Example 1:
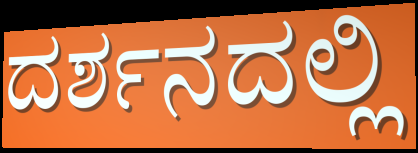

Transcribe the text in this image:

ದರ್ಶನದಲ್ಲಿ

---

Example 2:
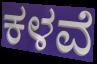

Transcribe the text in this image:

ಕಳವೆ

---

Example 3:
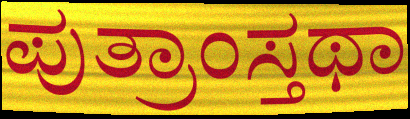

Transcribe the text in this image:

ಪುತ್ರಾಂಸ್ತಥಾ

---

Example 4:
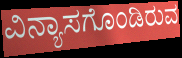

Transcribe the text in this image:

ವಿನ್ಯಾಸಗೊಂಡಿರುವ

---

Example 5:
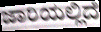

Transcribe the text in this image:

ಜಾರಿಯಲ್ಲಿದೆ